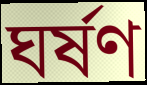
ঘর্ষণ